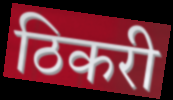
ठिकरी